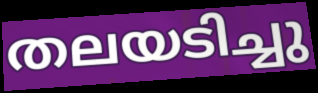
തലയടിച്ചു